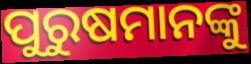
ପୁରୁଷମାନଙ୍କୁ